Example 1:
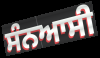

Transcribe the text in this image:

ਸੰਨਆਸੀ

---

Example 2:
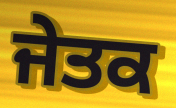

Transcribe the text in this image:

ਜੇਤਕ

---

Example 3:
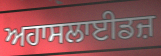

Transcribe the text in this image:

ਅਹਾਸਲਾਈਡਜ਼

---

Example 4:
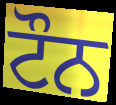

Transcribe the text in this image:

ਟੌਨ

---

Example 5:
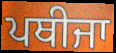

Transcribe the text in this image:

ਪਥੀਜਾ